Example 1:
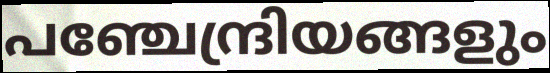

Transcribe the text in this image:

പഞ്ചേന്ദ്രിയങ്ങളും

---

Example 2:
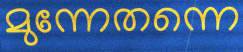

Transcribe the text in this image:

മുന്നേതന്നെ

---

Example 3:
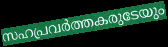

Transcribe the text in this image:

സഹപ്രവർത്തകരുടേയും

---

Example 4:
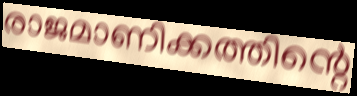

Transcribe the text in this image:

രാജമാണിക്കത്തിന്റെ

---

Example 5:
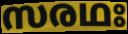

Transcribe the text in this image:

സരഥഃ